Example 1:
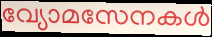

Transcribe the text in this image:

വ്യോമസേനകൾ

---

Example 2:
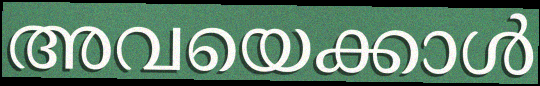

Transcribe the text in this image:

അവയെക്കാൾ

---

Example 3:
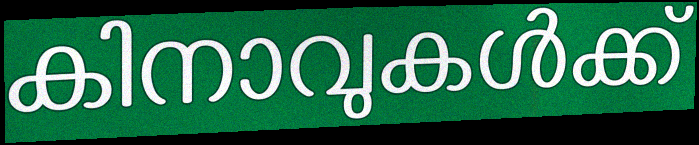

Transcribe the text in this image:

കിനാവുകൾക്ക്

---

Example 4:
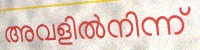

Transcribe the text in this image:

അവളിൽനിന്ന്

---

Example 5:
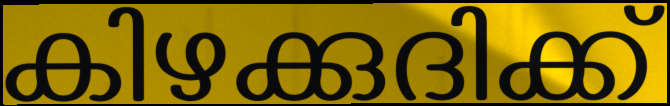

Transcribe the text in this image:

കിഴക്കുദിക്ക്